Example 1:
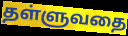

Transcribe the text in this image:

தள்ளுவதை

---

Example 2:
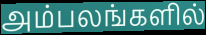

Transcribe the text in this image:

அம்பலங்களில்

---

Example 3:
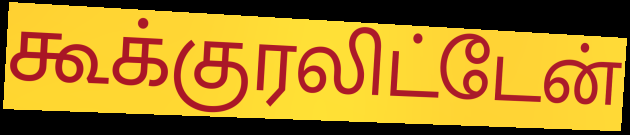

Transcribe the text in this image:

கூக்குரலிட்டேன்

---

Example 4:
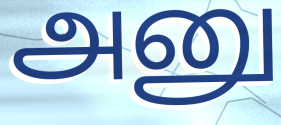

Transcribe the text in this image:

அனு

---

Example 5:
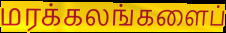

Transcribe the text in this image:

மரக்கலங்களைப்